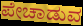
ಪೇಚಾಡುವ